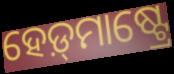
ହେଡ଼୍‌ମାଷ୍ଟ୍ରେ